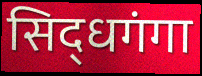
सिद्धगंगा